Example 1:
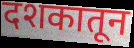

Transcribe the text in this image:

दशकातून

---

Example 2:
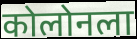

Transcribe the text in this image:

कोलोनला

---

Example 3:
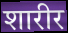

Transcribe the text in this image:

शारीर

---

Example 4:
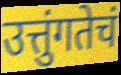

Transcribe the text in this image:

उत्तुंगतेचं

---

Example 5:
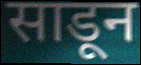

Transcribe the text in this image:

साडून